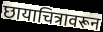
छायाचित्रावरून